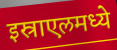
इस्राएलमध्ये